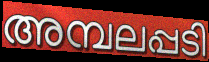
അമ്പലപ്പടി